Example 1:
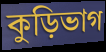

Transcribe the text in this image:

কুড়িভাগ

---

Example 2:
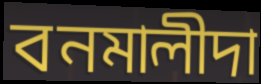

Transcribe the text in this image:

বনমালীদা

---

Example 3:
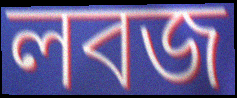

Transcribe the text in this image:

লবজ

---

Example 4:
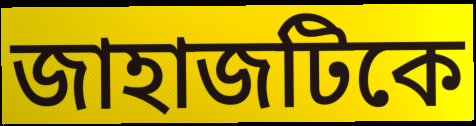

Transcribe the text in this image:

জাহাজটিকে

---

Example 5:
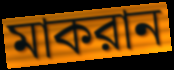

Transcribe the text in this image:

মাকরান